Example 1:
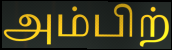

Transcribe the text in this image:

அம்பிற்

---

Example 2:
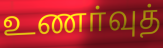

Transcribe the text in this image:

உணர்வுத்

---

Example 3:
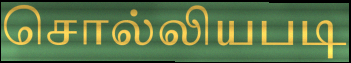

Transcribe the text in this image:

சொல்லியபடி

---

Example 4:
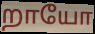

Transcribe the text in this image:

றாயோ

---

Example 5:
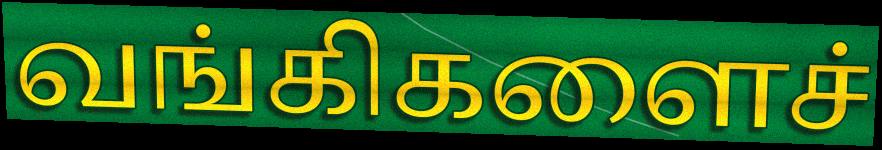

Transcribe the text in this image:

வங்கிகளைச்